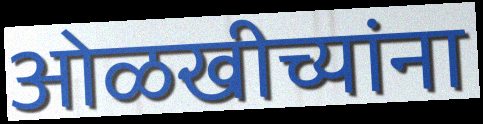
ओळखीच्यांना